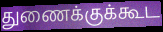
துணைக்குக்கூட